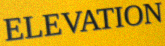
ELEVATION